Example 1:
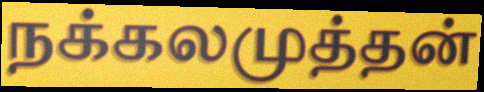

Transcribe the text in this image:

நக்கலமுத்தன்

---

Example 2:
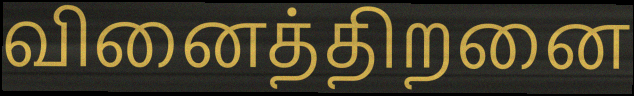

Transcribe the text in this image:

வினைத்திறனை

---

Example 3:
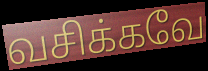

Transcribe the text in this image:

வசிக்கவே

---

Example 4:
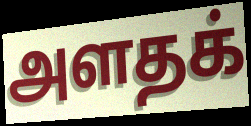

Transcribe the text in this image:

அளதக்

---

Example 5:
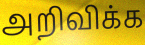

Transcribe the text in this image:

அறிவிக்க